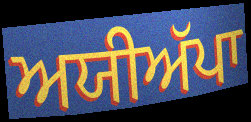
ਅਯੀਅੱਪਾ